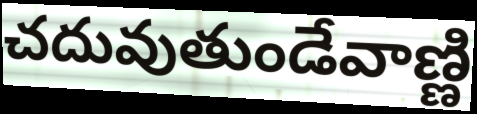
చదువుతుండేవాణ్ణి